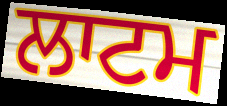
ਲਾਟਮ